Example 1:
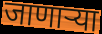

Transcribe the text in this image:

जाणाऱ्या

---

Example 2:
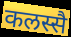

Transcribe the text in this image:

कलस्सै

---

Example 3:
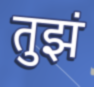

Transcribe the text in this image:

तुझं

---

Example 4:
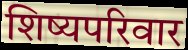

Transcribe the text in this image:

शिष्यपरिवार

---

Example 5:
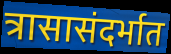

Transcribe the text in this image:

त्रासासंदर्भात